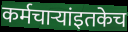
कर्मचाऱ्यांइतकेच